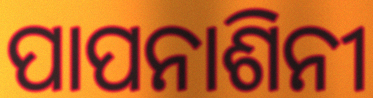
ପାପନାଶିନୀ